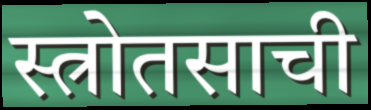
स्त्रोतसाची